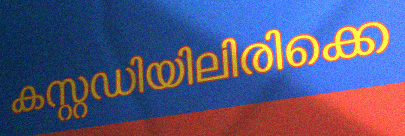
കസ്റ്റഡിയിലിരിക്കെ